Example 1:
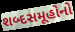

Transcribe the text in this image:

શબ્દસમૂહોનો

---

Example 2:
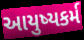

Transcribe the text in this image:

આયુષ્યકર્મ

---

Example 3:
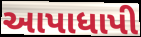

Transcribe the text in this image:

આપાધાપી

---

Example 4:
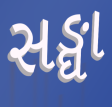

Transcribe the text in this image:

સઙ્ઘા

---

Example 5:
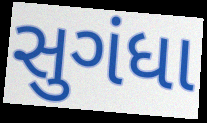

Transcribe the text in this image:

સુગંધા